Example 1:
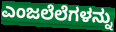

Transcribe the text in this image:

ಎಂಜಲೆಲೆಗಳನ್ನು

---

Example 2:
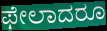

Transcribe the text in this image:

ಫೇಲಾದರೂ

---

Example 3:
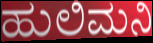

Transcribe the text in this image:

ಹುಲಿಮನಿ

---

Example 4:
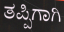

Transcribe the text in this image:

ತಪ್ಪಿಗಾಗಿ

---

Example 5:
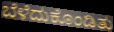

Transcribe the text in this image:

ಬೆಳೆದುಕೊಂಡಿತು